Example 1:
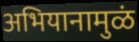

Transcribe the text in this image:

अभियानामुळं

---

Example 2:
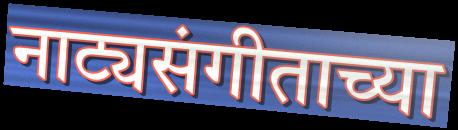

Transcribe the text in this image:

नाट्यसंगीताच्या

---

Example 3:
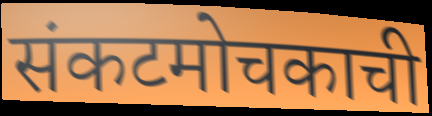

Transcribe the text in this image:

संकटमोचकाची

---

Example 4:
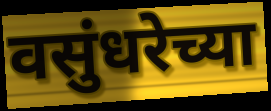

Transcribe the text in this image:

वसुंधरेच्या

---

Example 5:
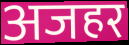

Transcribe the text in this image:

अजहर